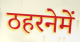
ठहरनेमें